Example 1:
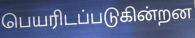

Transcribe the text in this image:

பெயரிடப்படுகின்றன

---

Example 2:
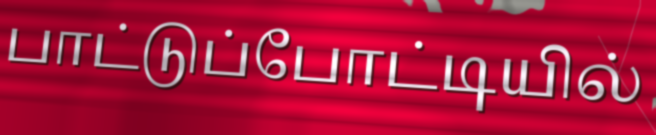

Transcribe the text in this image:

பாட்டுப்போட்டியில்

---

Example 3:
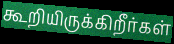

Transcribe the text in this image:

கூறியிருக்கிறீர்கள்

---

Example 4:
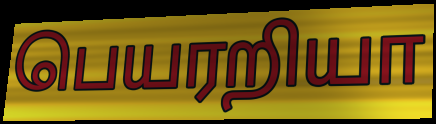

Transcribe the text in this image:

பெயரறியா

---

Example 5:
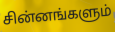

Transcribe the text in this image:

சின்னங்களும்